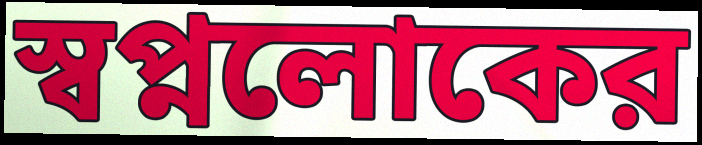
স্বপ্নলোকের